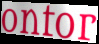
ontor